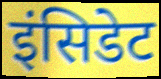
इंसिडेट